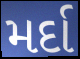
મર્દા